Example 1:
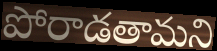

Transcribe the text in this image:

పోరాడతామని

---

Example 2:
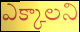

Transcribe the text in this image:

ఎక్కాలని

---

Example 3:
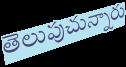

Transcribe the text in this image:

తెలుపుచున్నారు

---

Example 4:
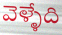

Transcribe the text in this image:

వెళ్ళేది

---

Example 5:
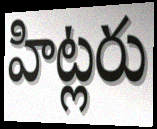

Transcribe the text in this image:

హిట్లరు